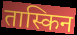
तास्किन